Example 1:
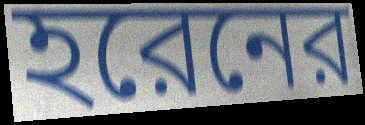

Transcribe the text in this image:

হরেনের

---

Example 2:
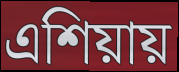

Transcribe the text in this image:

এশিয়ায়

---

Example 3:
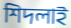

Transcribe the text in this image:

শিদলাই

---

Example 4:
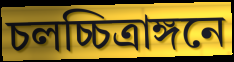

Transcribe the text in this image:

চলচ্চিত্রাঙ্গনে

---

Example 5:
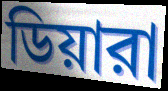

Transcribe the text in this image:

ডিয়ারা